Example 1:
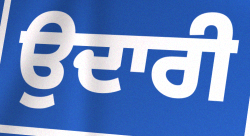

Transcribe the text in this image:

ਉਦਾਰੀ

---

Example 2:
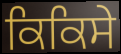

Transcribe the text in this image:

ਕਿਕਿਸੇ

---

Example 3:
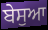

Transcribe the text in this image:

ਬੇਸੁਆ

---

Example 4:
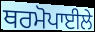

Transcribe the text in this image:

ਥਰਮੋਪਾਈਲੇ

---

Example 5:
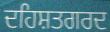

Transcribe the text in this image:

ਦਹਿਸ਼ਤਗਰਦ